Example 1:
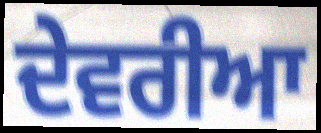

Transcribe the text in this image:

ਦੇਵਰੀਆ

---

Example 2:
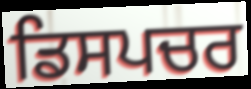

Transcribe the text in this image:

ਡਿਸਪਚਰ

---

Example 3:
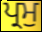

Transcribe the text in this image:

ਪ੍ਰਮੁ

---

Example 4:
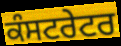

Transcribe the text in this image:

ਕੰਸਟਰੇਟਰ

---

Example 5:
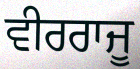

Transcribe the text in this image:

ਵੀਰਰਾਜੂ